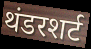
थंडरशर्ट